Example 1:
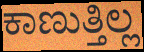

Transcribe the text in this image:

ಕಾಣುತ್ತಿಲ್ಲ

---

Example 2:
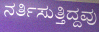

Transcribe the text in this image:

ನರ್ತಿಸುತ್ತಿದ್ದವು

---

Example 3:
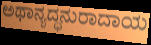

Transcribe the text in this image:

ಅಥಾನ್ಯದ್ಧನುರಾದಾಯ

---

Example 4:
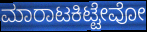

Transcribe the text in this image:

ಮಾರಾಟಕಿಟ್ಟೇವೋ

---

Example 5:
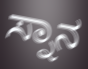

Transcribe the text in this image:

ಸ್ನಾನ